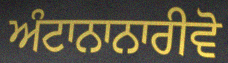
ਅੰਟਾਨਾਨਾਰੀਵੋ